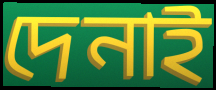
দেনাই